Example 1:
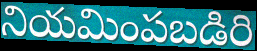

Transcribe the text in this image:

నియమింపబడిరి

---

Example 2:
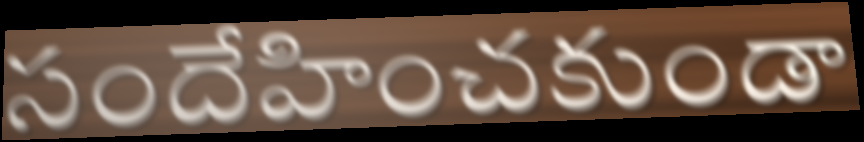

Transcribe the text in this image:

సందేహించకుండా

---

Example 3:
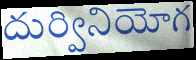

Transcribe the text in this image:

దుర్వినియోగ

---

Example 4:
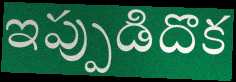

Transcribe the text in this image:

ఇప్పుడిదొక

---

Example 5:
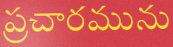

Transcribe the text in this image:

ప్రచారమును